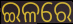
ଇଳରେ